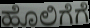
ಹೊಲಿಗೆಗೆ